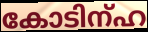
കോടിന്ഹ